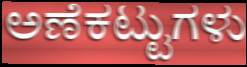
ಅಣೆಕಟ್ಟುಗಳು